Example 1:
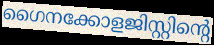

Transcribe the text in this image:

ഗൈനക്കോളജിസ്റ്റിന്റെ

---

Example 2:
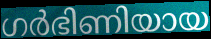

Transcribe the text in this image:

ഗർഭിണിയായ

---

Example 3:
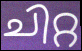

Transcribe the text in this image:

ചിറ്റ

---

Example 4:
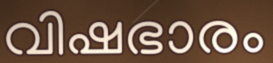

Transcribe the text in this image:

വിഷഭാരം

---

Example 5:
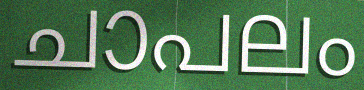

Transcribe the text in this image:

ചാപലം